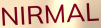
NIRMAL